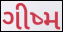
ગીષ્મ